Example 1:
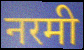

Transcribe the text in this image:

नरमी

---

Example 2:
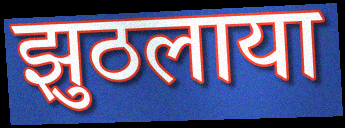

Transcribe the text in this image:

झुठलाया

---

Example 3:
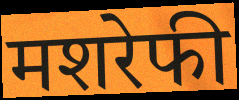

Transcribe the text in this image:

मशरेफी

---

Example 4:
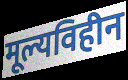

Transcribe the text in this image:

मूल्यविहीन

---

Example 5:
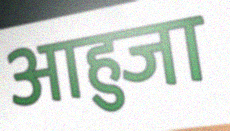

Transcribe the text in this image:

आहुजा